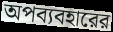
অপব্যবহারের